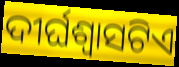
ଦୀର୍ଘଶ୍ୱାସଟିଏ